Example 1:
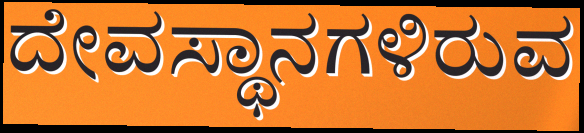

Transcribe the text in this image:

ದೇವಸ್ಥಾನಗಳಿರುವ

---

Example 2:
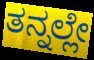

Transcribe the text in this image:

ತನ್ನಲ್ಲೇ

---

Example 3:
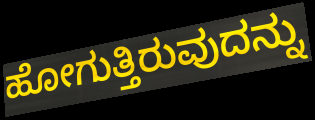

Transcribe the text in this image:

ಹೋಗುತ್ತಿರುವುದನ್ನು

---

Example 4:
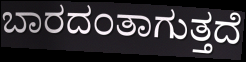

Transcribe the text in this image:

ಬಾರದಂತಾಗುತ್ತದೆ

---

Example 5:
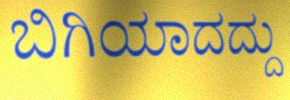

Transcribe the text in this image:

ಬಿಗಿಯಾದದ್ದು